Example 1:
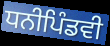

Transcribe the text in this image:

ਧਨੀਪਿੰਡਵੀ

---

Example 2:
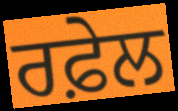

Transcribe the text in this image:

ਰਫ਼ੇਲ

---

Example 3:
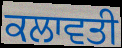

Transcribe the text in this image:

ਕਲਾਵਤੀ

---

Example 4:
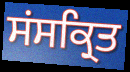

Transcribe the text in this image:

ਸਂਸਕ੍ਰਿਤ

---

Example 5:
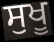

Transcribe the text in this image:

ਸੁਖੂ